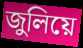
জুলিয়ে